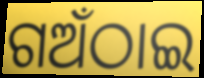
ଗଅଁଠାଇ